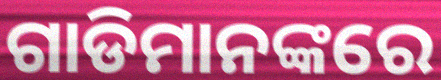
ଗାଡିମାନଙ୍କରେ